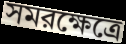
সমরক্ষেত্রে